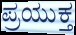
ಪ್ರಯುಕ್ತ